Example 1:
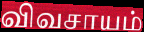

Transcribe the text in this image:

விவசாயம்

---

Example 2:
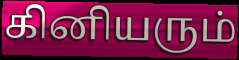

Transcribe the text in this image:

கினியரும்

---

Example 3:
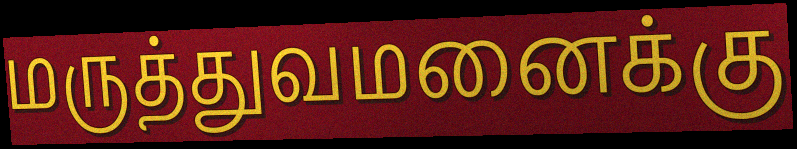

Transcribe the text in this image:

மருத்துவமனைக்கு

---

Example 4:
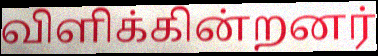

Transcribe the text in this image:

விளிக்கின்றனர்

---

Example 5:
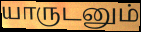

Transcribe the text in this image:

யாருடனும்